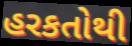
હરકતોથી